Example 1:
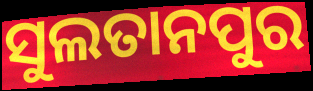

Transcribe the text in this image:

ସୁଲତାନପୁର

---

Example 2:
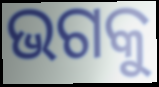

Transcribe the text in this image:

ଭଗକୁ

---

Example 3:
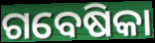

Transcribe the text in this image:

ଗବେଷିକା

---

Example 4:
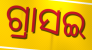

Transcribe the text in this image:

ଗ୍ରାସଇ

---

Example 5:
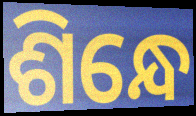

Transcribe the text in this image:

ଶିନ୍ଧେ